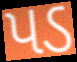
પડ